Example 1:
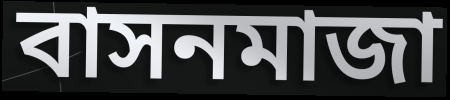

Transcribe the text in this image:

বাসনমাজা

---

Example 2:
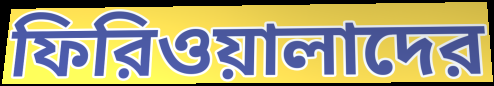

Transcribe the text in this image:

ফিরিওয়ালাদের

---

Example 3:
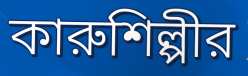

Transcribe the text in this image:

কারুশিল্পীর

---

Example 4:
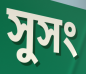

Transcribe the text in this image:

সুসং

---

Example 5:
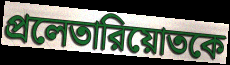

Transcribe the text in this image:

প্রলেতারিয়োতকে